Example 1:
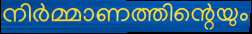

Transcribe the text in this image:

നിർമ്മാണത്തിന്റെയും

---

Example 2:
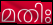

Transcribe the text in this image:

മതിഃ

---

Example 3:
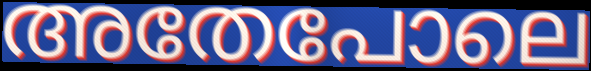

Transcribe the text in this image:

അതേപോലെ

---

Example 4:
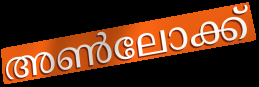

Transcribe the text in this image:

അൺലോക്ക്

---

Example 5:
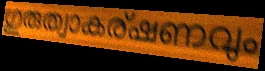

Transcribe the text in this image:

ഗുരുത്വാകര്ഷണവും